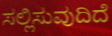
ಸಲ್ಲಿಸುವುದಿದೆ